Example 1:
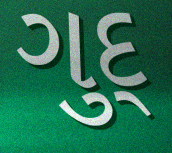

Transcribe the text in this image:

ગુદ્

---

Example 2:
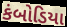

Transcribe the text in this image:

કંબોડિયા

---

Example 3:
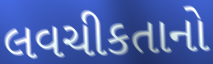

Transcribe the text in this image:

લવચીકતાનો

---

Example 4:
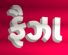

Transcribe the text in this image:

ફૈઝા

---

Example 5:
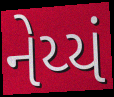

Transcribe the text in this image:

નેય્યં